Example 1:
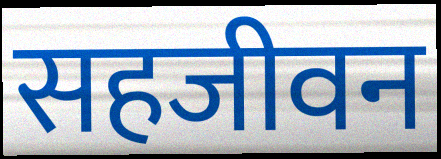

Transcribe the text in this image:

सहजीवन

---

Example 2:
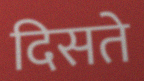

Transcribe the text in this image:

दिसते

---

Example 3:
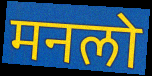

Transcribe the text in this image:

मनलो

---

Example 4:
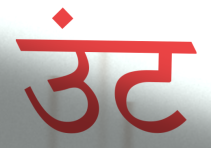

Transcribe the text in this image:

उंट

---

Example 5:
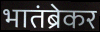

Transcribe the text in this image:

भातंब्रेकर